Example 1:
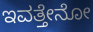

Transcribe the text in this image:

ಇವತ್ತೇನೋ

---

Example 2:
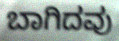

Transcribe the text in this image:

ಬಾಗಿದವು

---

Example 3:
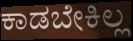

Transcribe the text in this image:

ಕಾಡಬೇಕಿಲ್ಲ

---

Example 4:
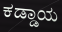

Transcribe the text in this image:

ಕಡ್ಡಾಯ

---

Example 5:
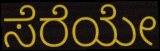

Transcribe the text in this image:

ಸೆರೆಯೇ